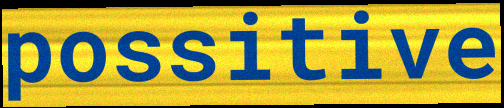
possitive